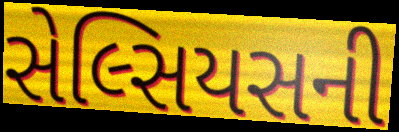
સેલ્સિયસની